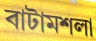
বাটামশলা